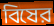
বিষের